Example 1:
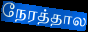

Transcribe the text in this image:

நேரத்தால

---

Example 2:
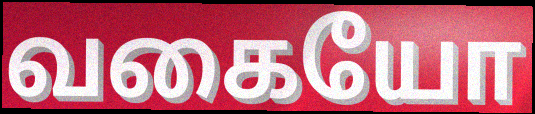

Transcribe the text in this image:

வகையோ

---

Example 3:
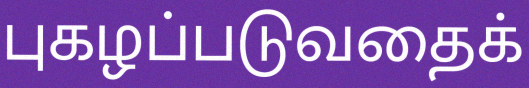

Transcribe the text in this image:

புகழப்படுவதைக்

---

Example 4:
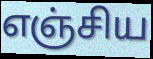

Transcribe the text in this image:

எஞ்சிய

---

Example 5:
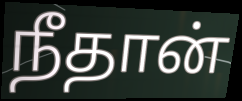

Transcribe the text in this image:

நீதான்